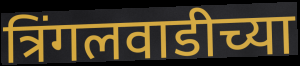
त्रिंगलवाडीच्या